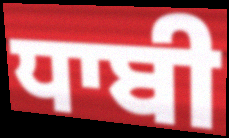
ਧਾਬੀ